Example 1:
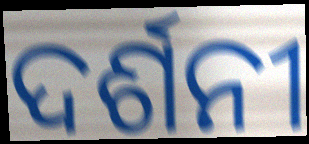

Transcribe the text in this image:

ଦର୍ଶନୀ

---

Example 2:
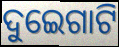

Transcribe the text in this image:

ଦୁଇେଗାଟି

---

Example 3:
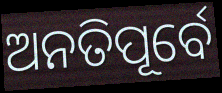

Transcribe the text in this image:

ଅନତିପୂର୍ବେ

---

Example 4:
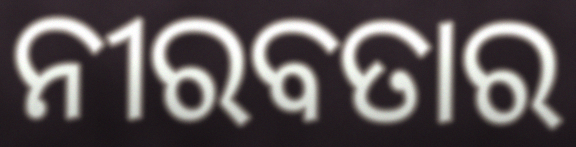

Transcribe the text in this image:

ନୀରବତାର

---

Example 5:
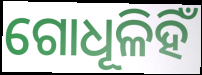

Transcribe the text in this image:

ଗୋଧୂଳିହିଁ